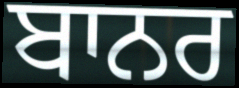
ਬਾਨਰ